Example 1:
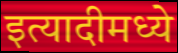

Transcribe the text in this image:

इत्यादीमध्ये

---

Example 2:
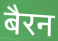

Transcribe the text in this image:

बैरन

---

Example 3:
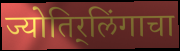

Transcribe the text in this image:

ज्योतिर्लिंगाचा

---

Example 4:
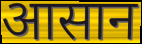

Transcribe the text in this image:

आसान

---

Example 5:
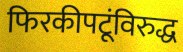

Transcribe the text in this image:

फिरकीपटूंविरुद्ध